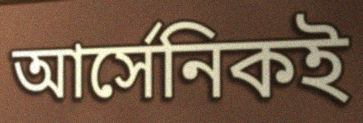
আর্সেনিকই